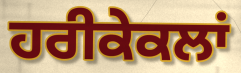
ਹਰੀਕੇਕਲਾਂ